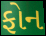
ફોન